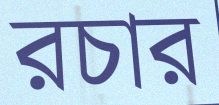
রচার